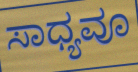
ಸಾಧ್ಯವೂ